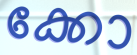
ക്കോ